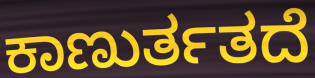
ಕಾಣುರ್ತತದೆ